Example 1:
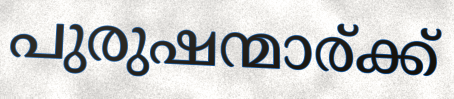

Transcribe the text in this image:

പുരുഷന്മാര്ക്ക്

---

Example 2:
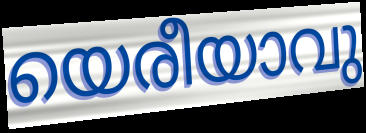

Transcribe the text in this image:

യെരീയാവു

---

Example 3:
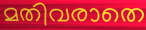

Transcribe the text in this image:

മതിവരാതെ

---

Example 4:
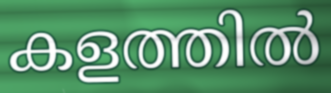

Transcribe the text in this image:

കളത്തിൽ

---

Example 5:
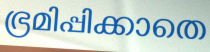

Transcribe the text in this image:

ഭ്രമിപ്പിക്കാതെ